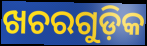
ଖଚରଗୁଡ଼ିକ